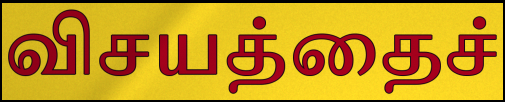
விசயத்தைச்